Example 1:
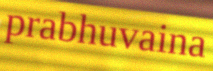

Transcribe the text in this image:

prabhuvaina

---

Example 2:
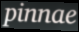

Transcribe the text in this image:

pinnae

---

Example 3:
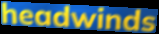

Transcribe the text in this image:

headwinds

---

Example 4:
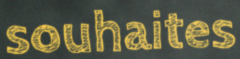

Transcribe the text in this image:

souhaites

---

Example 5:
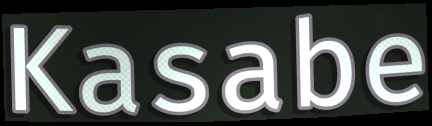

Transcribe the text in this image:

Kasabe